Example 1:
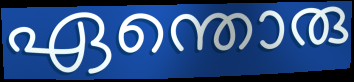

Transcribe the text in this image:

ഏന്തൊരു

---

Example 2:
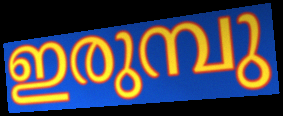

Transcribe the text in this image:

ഇരുമ്പു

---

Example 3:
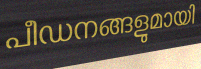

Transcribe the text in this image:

പീഡനങ്ങളുമായി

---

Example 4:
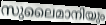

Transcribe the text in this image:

സുലൈമാനിയും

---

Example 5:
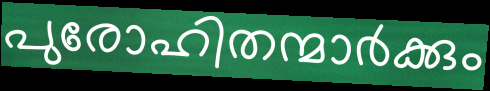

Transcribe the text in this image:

പുരോഹിതന്മാർക്കും